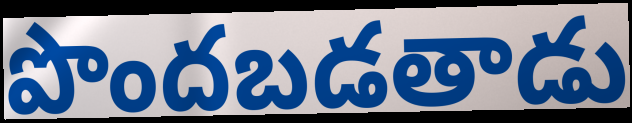
పొందబడతాడు